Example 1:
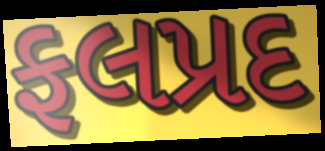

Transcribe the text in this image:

ફલપ્રદ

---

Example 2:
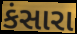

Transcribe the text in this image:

કંસારા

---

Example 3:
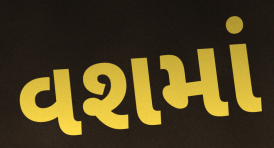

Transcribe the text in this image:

વશમાં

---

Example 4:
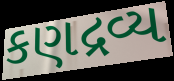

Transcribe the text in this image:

કણદ્રવ્ય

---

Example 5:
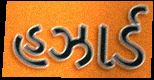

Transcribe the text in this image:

હઝાર્ડ